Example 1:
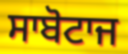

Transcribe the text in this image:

ਸਾਬੋਟਾਜ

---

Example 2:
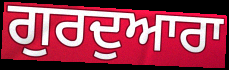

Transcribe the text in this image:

ਗੁਰਦੁਆਰਾ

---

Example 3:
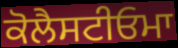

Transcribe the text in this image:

ਕੋਲੈਸਟੀਓਮਾ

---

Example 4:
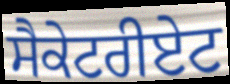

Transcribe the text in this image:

ਸੈਕੇਟਰੀਏਟ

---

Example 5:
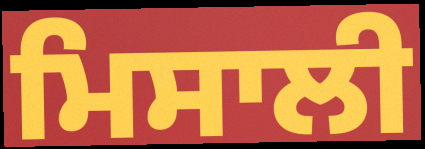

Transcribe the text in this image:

ਮਿਸਾਲੀ